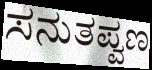
ಸನುತಪ್ವಣ